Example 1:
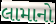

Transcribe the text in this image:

લામાનો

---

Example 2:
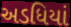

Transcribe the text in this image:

અડધિયાં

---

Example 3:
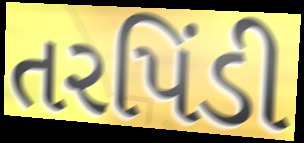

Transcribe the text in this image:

તરપિંડી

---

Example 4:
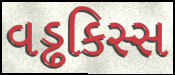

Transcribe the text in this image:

વડ્ઢકિસ્સ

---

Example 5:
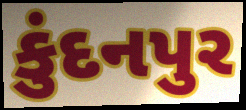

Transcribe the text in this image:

કુંદનપુર